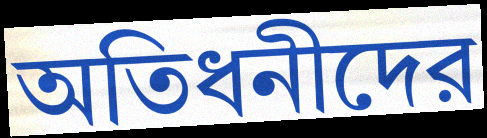
অতিধনীদের